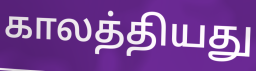
காலத்தியது